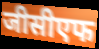
जीसीएफ